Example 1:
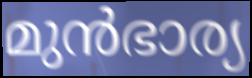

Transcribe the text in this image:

മുൻഭാര്യ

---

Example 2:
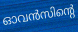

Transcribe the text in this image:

ഓവൻസിന്റെ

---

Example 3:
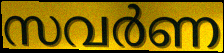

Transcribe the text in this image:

സവർണ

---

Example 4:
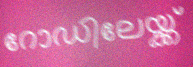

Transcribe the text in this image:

റോഡിലേയ്ക്ക്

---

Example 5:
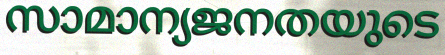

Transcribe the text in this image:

സാമാന്യജനതയുടെ